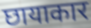
छायाकार